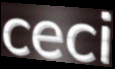
ceci